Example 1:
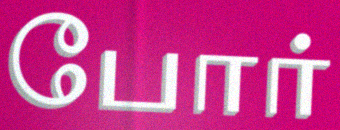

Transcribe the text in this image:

போர்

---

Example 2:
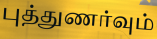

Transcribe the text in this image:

புத்துணர்வும்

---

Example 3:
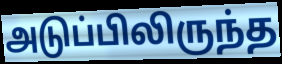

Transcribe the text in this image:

அடுப்பிலிருந்த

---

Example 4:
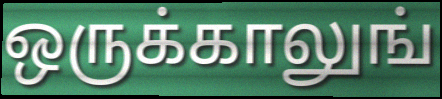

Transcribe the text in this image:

ஒருக்காலுங்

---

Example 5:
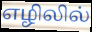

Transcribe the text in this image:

எழிலில்